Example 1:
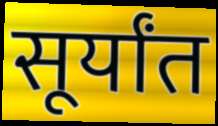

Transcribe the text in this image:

सूर्यांत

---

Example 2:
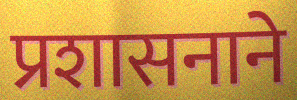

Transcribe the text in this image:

प्रशासनाने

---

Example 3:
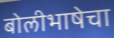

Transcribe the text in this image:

बोलीभाषेचा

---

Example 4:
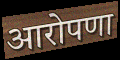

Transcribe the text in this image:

आरोपणा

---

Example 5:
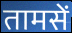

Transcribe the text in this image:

तामसें